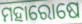
ମହାରୋଷେ